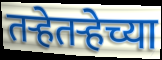
तऱ्हेतऱ्हेच्या